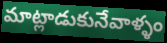
మాట్లాడుకునేవాళ్ళం